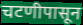
चटणीपासून